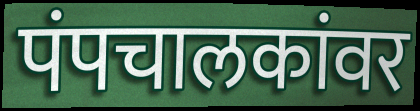
पंपचालकांवर